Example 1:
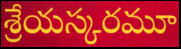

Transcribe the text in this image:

శ్రేయస్కరమూ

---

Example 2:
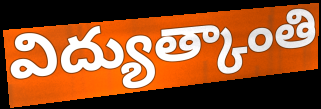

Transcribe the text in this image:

విద్యుత్కాంతి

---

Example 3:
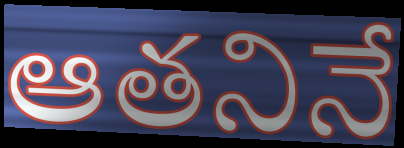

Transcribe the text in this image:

ఆతనినే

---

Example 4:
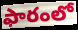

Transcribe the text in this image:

ఫారంలో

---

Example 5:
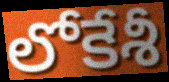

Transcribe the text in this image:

లోకేశీ